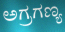
ಅಗ್ರಗಣ್ಯ